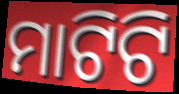
ମାଟିଟି